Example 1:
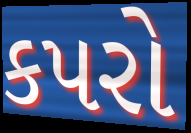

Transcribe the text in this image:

કપરો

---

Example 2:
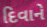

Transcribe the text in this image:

દિવાને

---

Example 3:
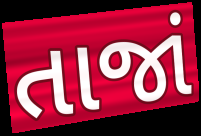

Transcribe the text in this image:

તાજાં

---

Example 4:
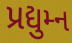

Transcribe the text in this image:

પ્રદ્યુમ્ન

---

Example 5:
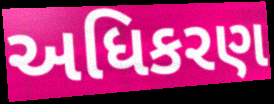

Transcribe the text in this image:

અધિકરણ